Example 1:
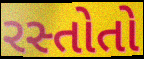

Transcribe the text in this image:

રસ્તોતો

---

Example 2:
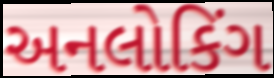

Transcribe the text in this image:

અનલોકિંગ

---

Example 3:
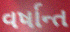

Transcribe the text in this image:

વર્ષાન્ત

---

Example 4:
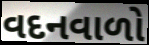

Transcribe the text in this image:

વદનવાળો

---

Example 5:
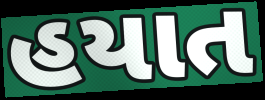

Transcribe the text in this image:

હયાત